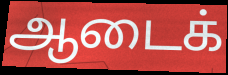
ஆடைக்